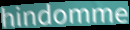
hindomme